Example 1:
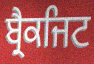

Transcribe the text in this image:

ਬ੍ਰੈਕਜਿਟ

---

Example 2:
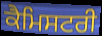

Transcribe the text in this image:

ਕੈਮਿਸਟਰੀ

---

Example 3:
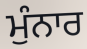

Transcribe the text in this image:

ਮੁੰਨਾਰ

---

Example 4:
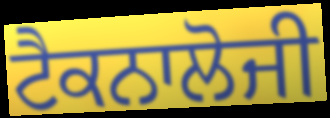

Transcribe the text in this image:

ਟੈਕਨਾਲੋਜੀ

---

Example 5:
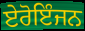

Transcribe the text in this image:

ਏਰੋਇੰਜਨ